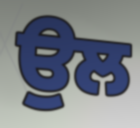
ਉਲ